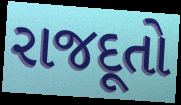
રાજદૂતો